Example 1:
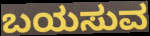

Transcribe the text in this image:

ಬಯಸುವ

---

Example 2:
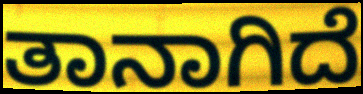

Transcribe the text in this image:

ತಾನಾಗಿದೆ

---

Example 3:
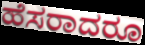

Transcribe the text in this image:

ಹೆಸರಾದರೂ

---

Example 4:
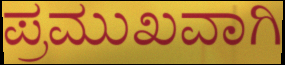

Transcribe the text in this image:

ಪ್ರಮುಖವಾಗಿ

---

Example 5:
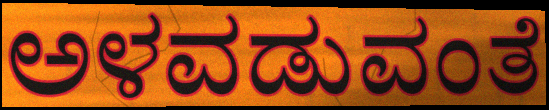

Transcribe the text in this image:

ಅಳವಡುವಂತೆ